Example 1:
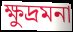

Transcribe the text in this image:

ক্ষুদ্রমনা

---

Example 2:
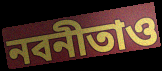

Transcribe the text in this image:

নবনীতাও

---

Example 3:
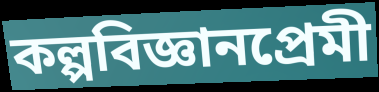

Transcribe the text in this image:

কল্পবিজ্ঞানপ্রেমী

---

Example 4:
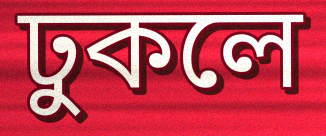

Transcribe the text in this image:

ঢুকলে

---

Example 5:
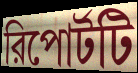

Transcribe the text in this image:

রিপোর্টটি